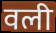
वली